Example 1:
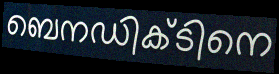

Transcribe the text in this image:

ബെനഡിക്ടിനെ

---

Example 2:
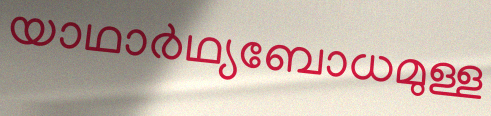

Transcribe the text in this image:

യാഥാർഥ്യബോധമുള്ള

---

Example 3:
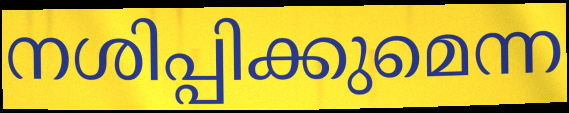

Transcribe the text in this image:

നശിപ്പിക്കുമെന്ന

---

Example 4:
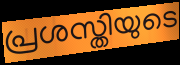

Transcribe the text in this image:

പ്രശസ്തിയുടെ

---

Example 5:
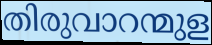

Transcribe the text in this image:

തിരുവാറന്മുള